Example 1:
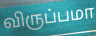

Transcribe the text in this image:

விருப்பமா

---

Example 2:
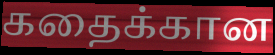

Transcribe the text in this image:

கதைக்கான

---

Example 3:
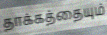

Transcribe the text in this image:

தாக்கத்தையும்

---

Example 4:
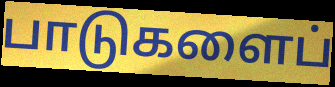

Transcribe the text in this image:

பாடுகளைப்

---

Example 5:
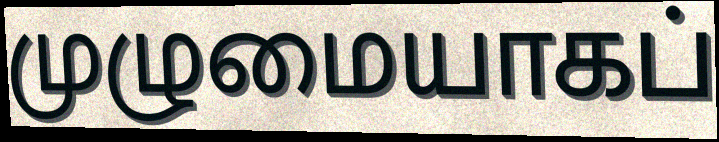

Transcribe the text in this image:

முழுமையாகப்